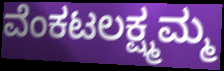
ವೆಂಕಟಲಕ್ಷ್ಮಮ್ಮ